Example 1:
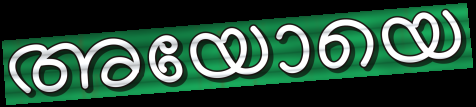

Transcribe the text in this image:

അയോയെ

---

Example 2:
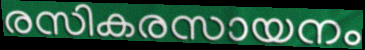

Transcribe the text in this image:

രസികരസായനം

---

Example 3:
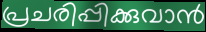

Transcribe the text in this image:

പ്രചരിപ്പിക്കുവാൻ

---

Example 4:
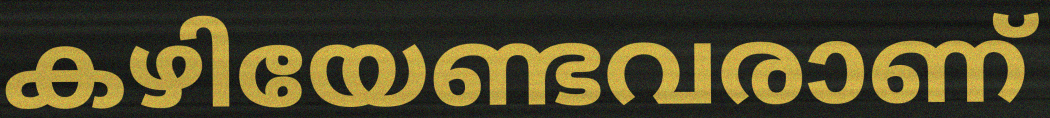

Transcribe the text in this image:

കഴിയേണ്ടവരാണ്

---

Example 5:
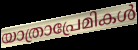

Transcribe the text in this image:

യാത്രാപ്രേമികൾ